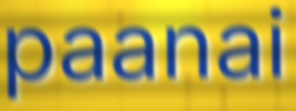
paanai